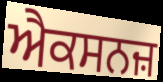
ਐਕਸਨਜ਼